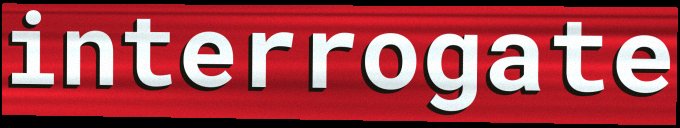
interrogate